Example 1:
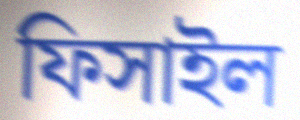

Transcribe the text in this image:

ফিসাইল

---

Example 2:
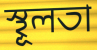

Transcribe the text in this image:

স্থূলতা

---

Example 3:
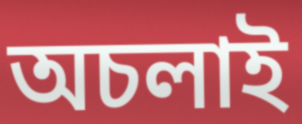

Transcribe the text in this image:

অচলাই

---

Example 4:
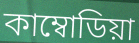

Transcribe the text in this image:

কাম্বোডিয়া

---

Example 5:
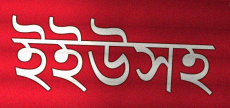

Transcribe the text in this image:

ইইউসহ